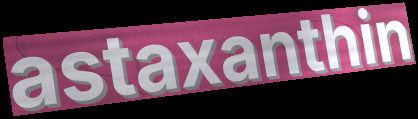
astaxanthin